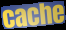
cache